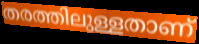
തരത്തിലുള്ളതാണ്